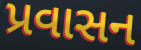
પ્રવાસન